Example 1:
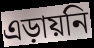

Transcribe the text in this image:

এড়ায়নি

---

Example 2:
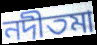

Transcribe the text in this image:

নদীতমা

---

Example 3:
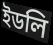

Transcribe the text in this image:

ইডলি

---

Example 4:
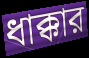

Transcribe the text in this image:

ধাক্কার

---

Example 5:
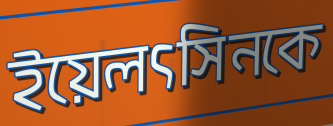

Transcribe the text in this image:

ইয়েলৎসিনকে